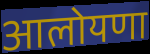
आलोयणा